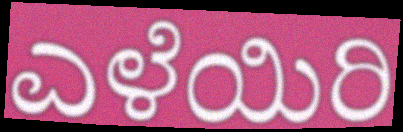
ಎಳೆಯಿರಿ